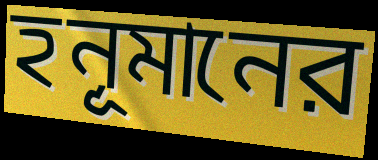
হনূমানের